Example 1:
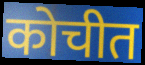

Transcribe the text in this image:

कोचीत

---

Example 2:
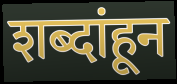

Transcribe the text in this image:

शब्दांहून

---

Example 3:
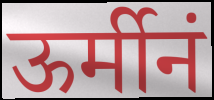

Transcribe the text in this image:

ऊर्मीनं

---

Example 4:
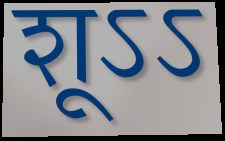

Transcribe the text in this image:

शूऽऽ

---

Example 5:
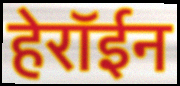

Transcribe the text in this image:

हेरॉईन